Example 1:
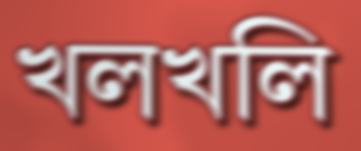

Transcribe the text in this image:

খলখলি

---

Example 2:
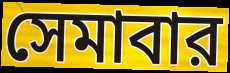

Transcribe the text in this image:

সেমাবার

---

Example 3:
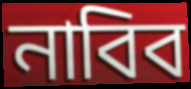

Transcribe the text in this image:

নাবিব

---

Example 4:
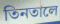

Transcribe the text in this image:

তিনতালে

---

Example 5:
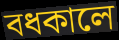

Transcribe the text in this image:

বধকালে